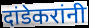
दांडेकरांनी